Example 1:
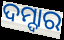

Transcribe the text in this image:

ଦମ୍ଦାର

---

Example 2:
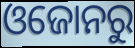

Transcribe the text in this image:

ଓଜୋନରୁ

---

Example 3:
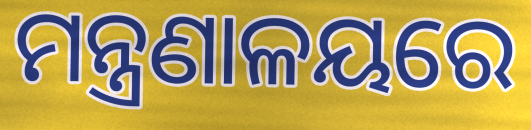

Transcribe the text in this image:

ମନ୍ତ୍ରଣାଳୟରେ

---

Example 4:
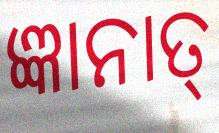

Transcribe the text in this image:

ଜ୍ଞାନାତ୍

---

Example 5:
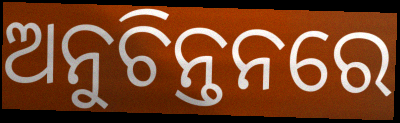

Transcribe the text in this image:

ଅନୁଚିନ୍ତନରେ